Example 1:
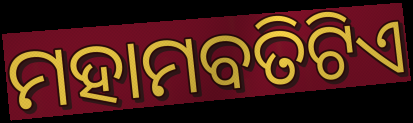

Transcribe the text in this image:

ମହାମବତିଟିଏ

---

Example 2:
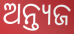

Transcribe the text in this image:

ଅନ୍ତ୍ୟଜ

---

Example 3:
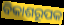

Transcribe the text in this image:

ବିକାଶରୂପକ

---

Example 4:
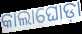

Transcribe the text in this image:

କାଲାଘୋଡ଼ା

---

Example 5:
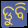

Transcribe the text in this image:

ଡୁବି